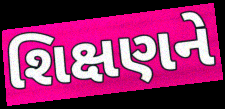
શિક્ષણને